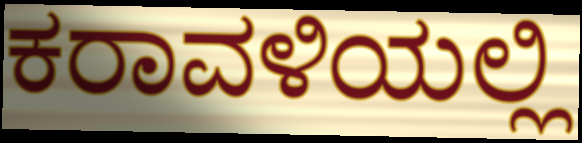
ಕರಾವಳಿಯಲ್ಲಿ